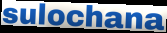
sulochana